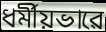
ধৰ্মীয়ভাৱে